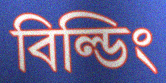
বিল্ডিং